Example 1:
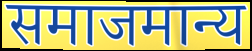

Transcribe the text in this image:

समाजमान्य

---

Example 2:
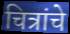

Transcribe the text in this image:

चित्रांचे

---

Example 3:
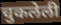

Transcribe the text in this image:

चुकलेली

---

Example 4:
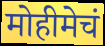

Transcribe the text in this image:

मोहीमेचं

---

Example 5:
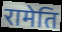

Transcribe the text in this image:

रामेति